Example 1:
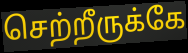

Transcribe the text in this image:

செற்றீருக்கே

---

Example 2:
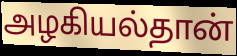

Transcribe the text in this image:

அழகியல்தான்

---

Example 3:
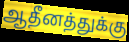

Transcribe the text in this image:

ஆதீனத்துக்கு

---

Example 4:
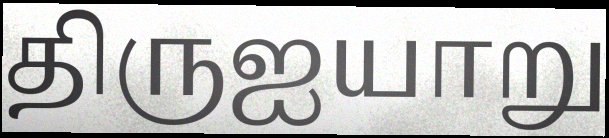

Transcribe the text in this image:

திருஐயாறு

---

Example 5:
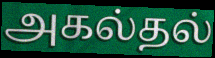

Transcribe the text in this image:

அகல்தல்